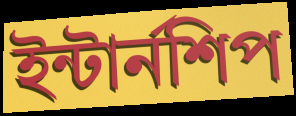
ইন্টার্নশিপ